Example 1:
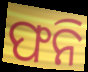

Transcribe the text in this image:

ଫନି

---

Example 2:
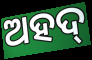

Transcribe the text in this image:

ଅହଦ୍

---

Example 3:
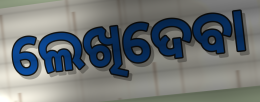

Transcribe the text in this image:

ଲେଖିଦେବା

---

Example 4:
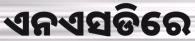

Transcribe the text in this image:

ଏନଏସଡିରେ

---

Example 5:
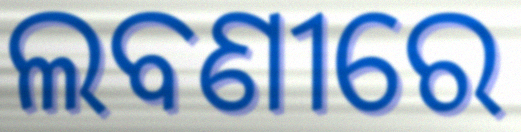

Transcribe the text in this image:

ଲବଣୀରେ